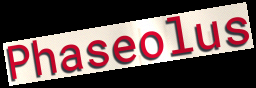
Phaseolus